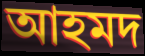
আহমদ